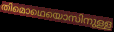
തിമൊഥെയൊസിനുള്ള